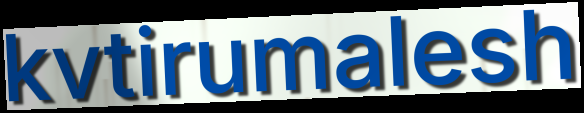
kvtirumalesh